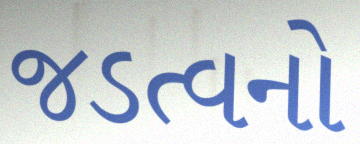
જડત્વનો